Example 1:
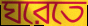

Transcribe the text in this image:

ঘরেতে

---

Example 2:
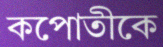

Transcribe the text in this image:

কপোতীকে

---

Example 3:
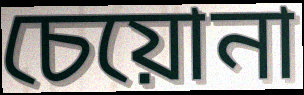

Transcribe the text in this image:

চেয়োনা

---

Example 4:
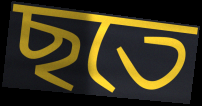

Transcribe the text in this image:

ছতে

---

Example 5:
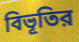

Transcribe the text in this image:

বিভূতির